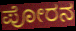
ಪೋರನ